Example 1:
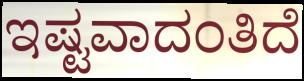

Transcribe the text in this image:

ಇಷ್ಟವಾದಂತಿದೆ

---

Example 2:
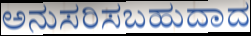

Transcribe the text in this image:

ಅನುಸರಿಸಬಹುದಾದ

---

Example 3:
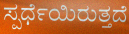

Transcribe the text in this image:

ಸ್ಪರ್ಧೆಯಿರುತ್ತದೆ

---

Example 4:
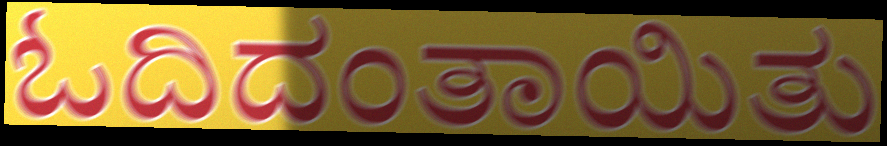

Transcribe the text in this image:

ಓದಿದಂತಾಯಿತು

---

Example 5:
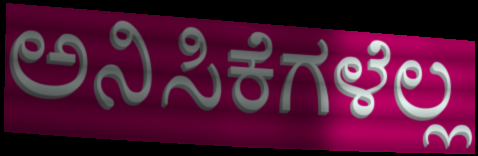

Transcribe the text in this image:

ಅನಿಸಿಕೆಗಳೆಲ್ಲ